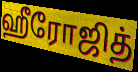
ஹீரோஜித்